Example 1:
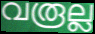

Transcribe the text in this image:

വരൂല്ല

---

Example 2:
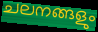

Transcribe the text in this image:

ചലനങ്ങളും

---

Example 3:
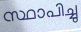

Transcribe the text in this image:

സ്ഥാപിച്ചു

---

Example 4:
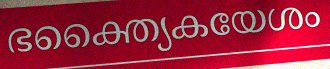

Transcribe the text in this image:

ഭക്ത്യൈകയേശം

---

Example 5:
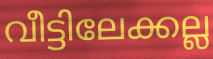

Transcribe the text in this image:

വീട്ടിലേക്കല്ല